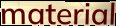
material